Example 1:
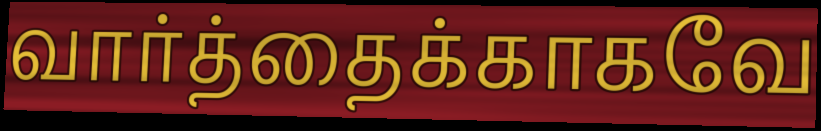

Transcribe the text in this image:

வார்த்தைக்காகவே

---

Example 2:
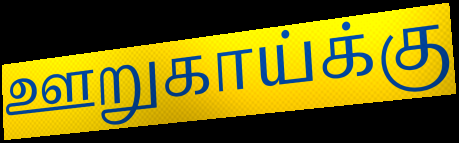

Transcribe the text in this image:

ஊறுகாய்க்கு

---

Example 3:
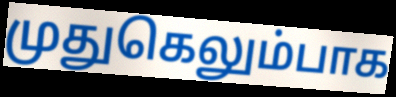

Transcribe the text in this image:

முதுகெலும்பாக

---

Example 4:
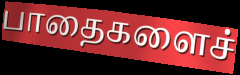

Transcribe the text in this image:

பாதைகளைச்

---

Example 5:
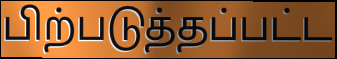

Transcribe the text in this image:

பிற்படுத்தப்பட்ட